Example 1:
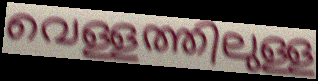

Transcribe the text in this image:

വെള്ളത്തിലുള്ള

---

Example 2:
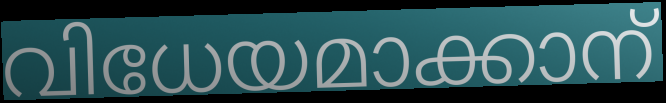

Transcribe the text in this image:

വിധേയമാക്കാന്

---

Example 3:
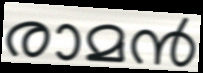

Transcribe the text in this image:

രാമൻ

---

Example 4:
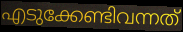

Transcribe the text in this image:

എടുക്കേണ്ടിവന്നത്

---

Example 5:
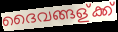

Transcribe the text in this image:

ദൈവങ്ങള്ക്ക്